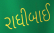
રાધીબાઈ